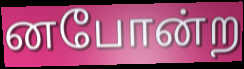
னபோன்ற